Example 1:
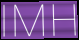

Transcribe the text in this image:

IMH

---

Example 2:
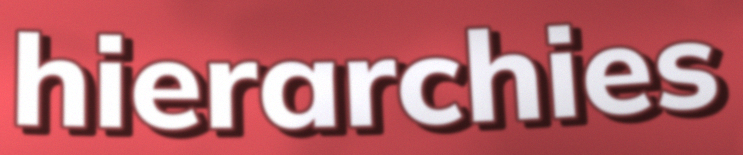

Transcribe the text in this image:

hierarchies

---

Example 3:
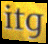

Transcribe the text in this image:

itg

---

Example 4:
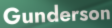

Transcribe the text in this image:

Gunderson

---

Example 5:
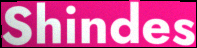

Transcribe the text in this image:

Shindes